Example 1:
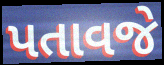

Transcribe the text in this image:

પતાવજે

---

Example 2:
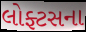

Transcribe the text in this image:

લોફ્ટસના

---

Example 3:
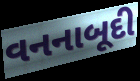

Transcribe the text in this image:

વનનાબૂદી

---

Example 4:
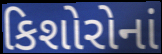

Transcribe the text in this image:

કિશોરોનાં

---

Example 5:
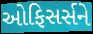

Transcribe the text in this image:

ઓફિસર્સને